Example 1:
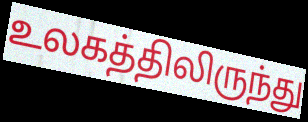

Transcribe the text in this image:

உலகத்திலிருந்து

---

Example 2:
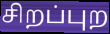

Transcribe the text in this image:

சிறப்புற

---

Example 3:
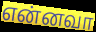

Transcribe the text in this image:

என்னவா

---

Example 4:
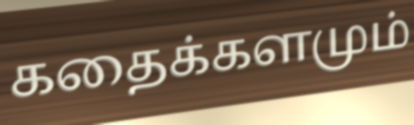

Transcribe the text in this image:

கதைக்களமும்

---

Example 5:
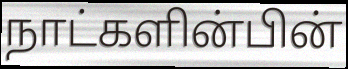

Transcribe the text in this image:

நாட்களின்பின்